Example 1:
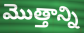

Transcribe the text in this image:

మొత్తాన్ని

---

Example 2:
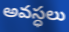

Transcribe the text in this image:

అవస్ధలు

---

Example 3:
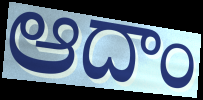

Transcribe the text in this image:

ఆదాం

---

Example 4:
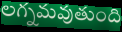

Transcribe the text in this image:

లగ్నమవుతుంది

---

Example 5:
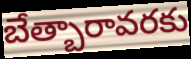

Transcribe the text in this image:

బేత్బారావరకు